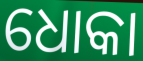
ଧୋକା